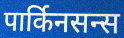
पार्किनसन्स